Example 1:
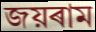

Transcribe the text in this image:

জয়ৰাম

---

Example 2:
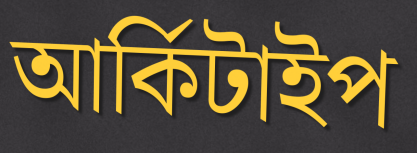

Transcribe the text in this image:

আৰ্কিটাইপ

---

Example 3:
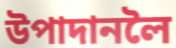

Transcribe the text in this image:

উপাদানলৈ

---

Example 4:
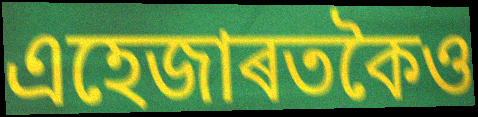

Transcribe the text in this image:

এহেজাৰতকৈও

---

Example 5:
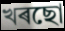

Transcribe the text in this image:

খৰছো